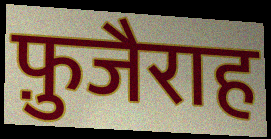
फ़ुजैराह